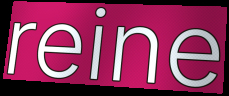
reine